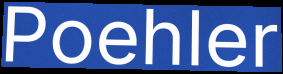
Poehler